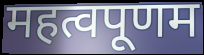
महत्वपूणम